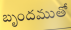
బృందముతో